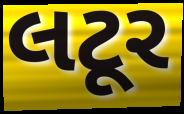
લટૂર